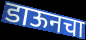
डाऊनचा